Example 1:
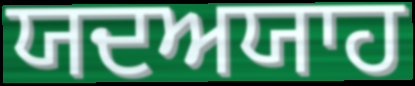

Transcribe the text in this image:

ਯਦਅਯਾਹ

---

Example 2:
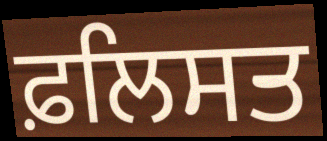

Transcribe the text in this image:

ਫ਼ਲਿਸਤ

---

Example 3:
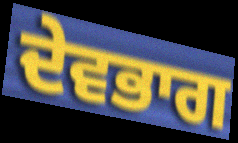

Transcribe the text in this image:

ਦੇਵਭਾਗ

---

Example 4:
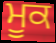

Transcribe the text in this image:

ਮੂਕ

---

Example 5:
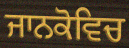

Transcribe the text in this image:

ਜਾਨਕੋਵਿਚ